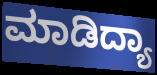
ಮಾಡಿದ್ಯಾ